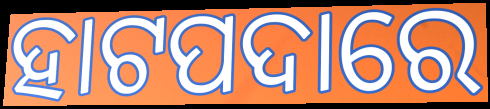
ହାଟପଦାରେ